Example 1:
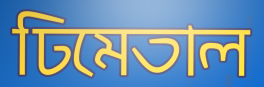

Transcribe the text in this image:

ঢিমেতাল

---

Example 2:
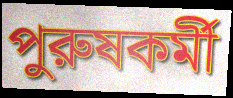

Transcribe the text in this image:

পুরুষকর্মী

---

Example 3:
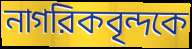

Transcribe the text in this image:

নাগরিকবৃন্দকে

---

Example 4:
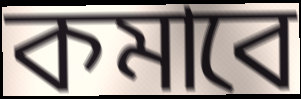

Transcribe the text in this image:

কমাবে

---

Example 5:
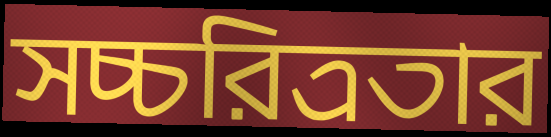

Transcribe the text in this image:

সচ্চরিত্রতার